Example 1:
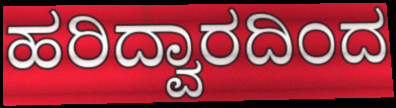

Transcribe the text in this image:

ಹರಿದ್ವಾರದಿಂದ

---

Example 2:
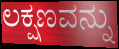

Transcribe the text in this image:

ಲಕ್ಷಣವನ್ನು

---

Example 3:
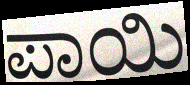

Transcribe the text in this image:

ಪಾಯಿ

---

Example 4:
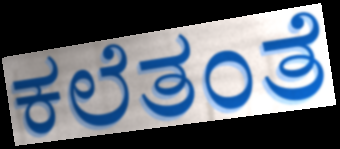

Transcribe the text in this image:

ಕಲೆತಂತೆ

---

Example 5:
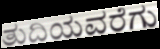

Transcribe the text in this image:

ತುದಿಯವರೆಗು